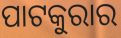
ପାଟକୁରାର